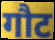
गौट